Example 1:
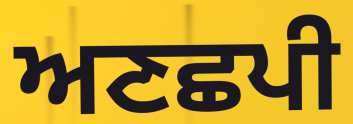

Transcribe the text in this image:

ਅਣਛਪੀ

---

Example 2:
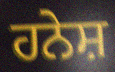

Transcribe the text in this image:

ਹਨੇਸ਼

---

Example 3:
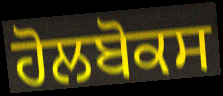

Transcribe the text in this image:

ਹੋਲਬੋਕਸ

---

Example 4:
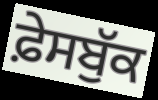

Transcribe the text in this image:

ਫ਼ੇਸਬੁੱਕ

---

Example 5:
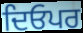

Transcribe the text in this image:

ਦਿਓਪਰ